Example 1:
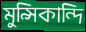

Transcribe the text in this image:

মুন্সিকান্দি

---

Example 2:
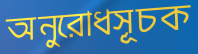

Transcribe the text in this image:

অনুরোধসূচক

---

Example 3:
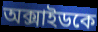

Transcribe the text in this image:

অক্সাইডকে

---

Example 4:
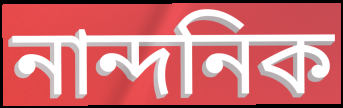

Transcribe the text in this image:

নান্দনিক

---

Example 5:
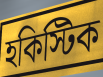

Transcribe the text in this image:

হকিস্টিক